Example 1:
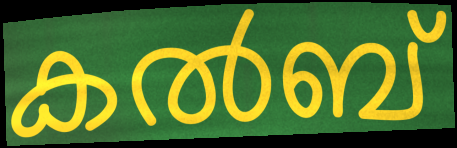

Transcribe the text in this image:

കൽബ്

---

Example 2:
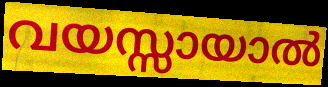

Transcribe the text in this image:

വയസ്സായാൽ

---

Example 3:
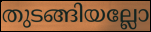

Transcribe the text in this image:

തുടങ്ങിയല്ലോ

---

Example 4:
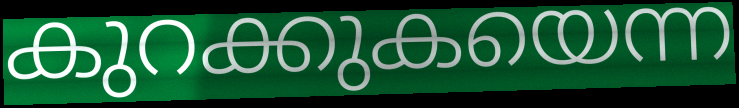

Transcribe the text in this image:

കുറക്കുകയെന്ന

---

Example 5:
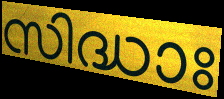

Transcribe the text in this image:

സിദ്ധാഃ